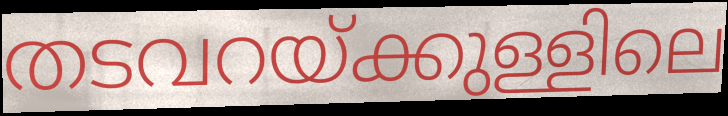
തടവറയ്ക്കുള്ളിലെ